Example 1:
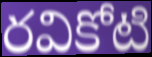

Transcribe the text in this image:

రవికోటి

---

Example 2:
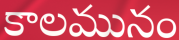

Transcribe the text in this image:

కాలమునం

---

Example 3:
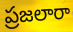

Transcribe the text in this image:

ప్రజలారా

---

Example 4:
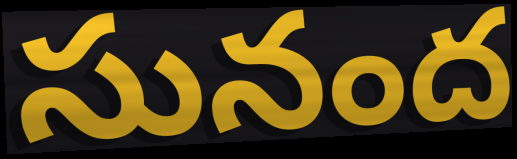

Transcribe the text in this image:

సునంద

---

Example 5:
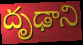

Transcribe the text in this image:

దృఢాని